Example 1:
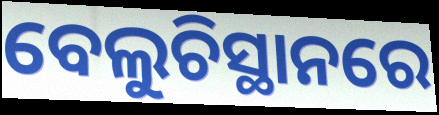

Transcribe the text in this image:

ବେଲୁଚିସ୍ଥାନରେ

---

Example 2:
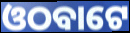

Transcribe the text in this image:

ଓଠବାଟେ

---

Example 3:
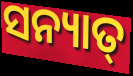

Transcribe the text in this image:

ସନ୍ୟାତ୍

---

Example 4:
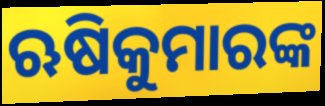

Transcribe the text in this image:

ଋଷିକୁମାରଙ୍କ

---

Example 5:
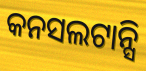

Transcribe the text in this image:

କନସଲଟାନ୍ସି